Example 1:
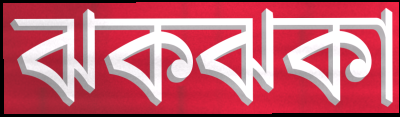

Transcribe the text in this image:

ঝকঝকা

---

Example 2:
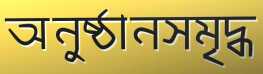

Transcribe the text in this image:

অনুষ্ঠানসমৃদ্ধ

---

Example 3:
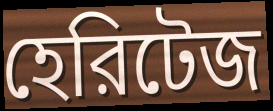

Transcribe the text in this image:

হেরিটেজ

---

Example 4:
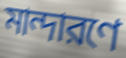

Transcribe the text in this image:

মান্দারণে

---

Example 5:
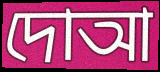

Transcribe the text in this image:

দোআ